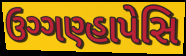
ઉગ્ગણ્હાપેસિ